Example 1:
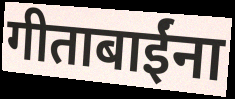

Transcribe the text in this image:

गीताबाईंना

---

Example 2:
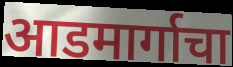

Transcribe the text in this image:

आडमार्गाचा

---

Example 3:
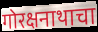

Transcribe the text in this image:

गोरक्षनाथाचा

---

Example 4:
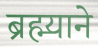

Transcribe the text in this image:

ब्रह्म्याने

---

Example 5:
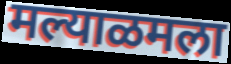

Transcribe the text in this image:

मल्याळमला